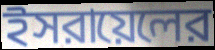
ইসরায়েলের